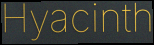
Hyacinth